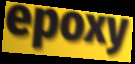
epoxy